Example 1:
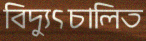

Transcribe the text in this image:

বিদ্যুৎচালিত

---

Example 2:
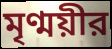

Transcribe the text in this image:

মৃণ্ময়ীর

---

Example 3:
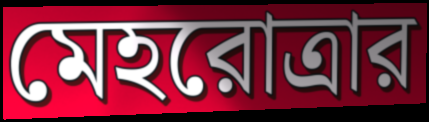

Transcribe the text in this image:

মেহরোত্রার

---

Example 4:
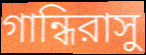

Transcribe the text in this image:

গান্ধিরাসু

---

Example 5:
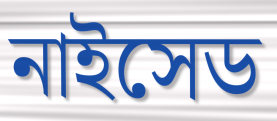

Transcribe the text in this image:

নাইসেড